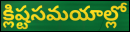
క్లిష్టసమయాల్లో